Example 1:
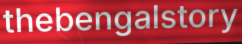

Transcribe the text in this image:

thebengalstory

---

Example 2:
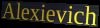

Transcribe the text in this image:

Alexievich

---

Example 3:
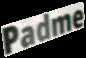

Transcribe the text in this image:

Padme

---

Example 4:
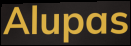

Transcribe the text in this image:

Alupas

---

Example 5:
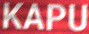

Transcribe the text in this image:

KAPU